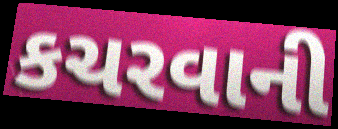
કચરવાની